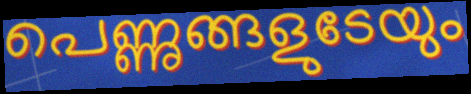
പെണ്ണുങ്ങളുടേയും